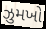
ઝુમખો